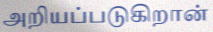
அறியப்படுகிறான்